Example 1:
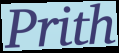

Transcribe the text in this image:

Prith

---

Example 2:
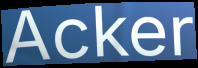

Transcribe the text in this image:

Acker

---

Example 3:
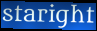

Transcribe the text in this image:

staright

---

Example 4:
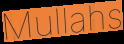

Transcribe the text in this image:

Mullahs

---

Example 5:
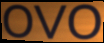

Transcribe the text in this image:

OVO